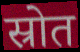
स्रोत